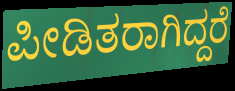
ಪೀಡಿತರಾಗಿದ್ದರೆ